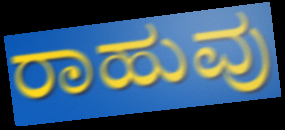
ರಾಹುವು